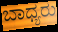
ಬಾಧ್ಯರು